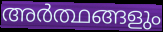
അർത്ഥങ്ങളും